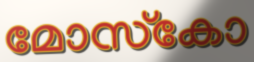
മോസ്‌കോ